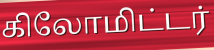
கிலோமிட்டர்